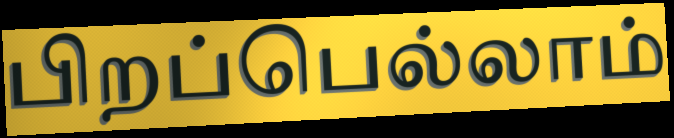
பிறப்பெல்லாம்